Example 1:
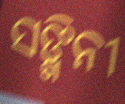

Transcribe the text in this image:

ସଙ୍ଗିନୀ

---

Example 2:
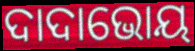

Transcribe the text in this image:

ଦାଦାଭୋୟ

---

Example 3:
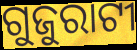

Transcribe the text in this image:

ଗୁଜୁରାଟୀ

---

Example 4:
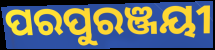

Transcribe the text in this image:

ପରପୁରଞ୍ଜୟୀ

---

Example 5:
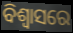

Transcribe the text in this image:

ବିଶ୍ବାସରେ